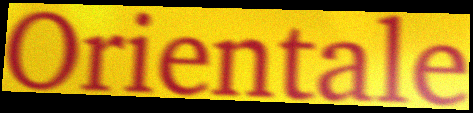
Orientale